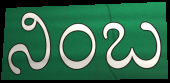
ನಿಂಬ